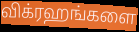
விக்ரஹங்களை